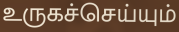
உருகச்செய்யும்